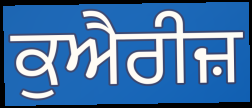
ਕੁਐਰੀਜ਼